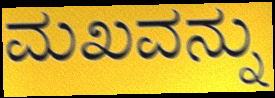
ಮಖವನ್ನು